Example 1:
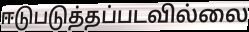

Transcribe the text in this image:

ஈடுபடுத்தப்படவில்லை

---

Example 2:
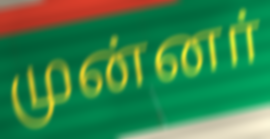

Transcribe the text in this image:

முன்னர்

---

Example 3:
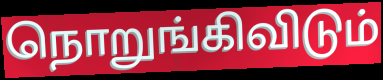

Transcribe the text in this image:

நொறுங்கிவிடும்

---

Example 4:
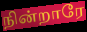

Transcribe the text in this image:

நின்றாரே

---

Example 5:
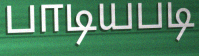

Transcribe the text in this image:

பாடியபடி